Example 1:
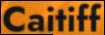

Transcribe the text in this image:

Caitiff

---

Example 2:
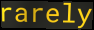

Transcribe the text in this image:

rarely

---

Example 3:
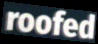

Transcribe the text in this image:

roofed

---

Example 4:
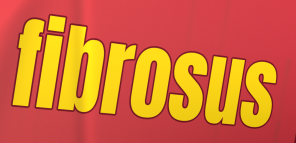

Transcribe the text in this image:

fibrosus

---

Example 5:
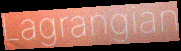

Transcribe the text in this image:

Lagrangian